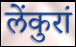
लेंकुरां